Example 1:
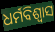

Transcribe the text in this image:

ଧର୍ମବିଶ୍ୱାସ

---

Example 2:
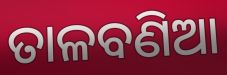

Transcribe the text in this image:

ତାଳବଣିଆ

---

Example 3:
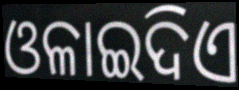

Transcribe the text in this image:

ଓଳାଇଦିଏ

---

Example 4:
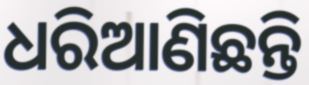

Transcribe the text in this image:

ଧରିଆଣିଛନ୍ତି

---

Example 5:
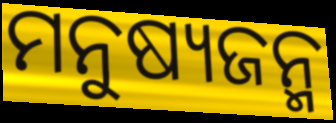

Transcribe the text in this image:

ମନୁଷ୍ୟଜନ୍ମ